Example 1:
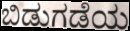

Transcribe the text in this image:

ಬಿಡುಗಡೆಯ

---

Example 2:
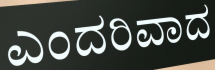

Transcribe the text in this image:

ಎಂದರಿವಾದ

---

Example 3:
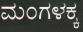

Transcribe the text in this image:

ಮಂಗಳಕ್ಕ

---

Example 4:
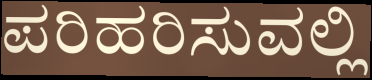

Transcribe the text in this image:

ಪರಿಹರಿಸುವಲ್ಲಿ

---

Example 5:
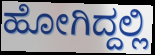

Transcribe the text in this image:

ಹೋಗಿದ್ದಲ್ಲಿ